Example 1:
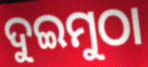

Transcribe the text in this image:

ଦୁଇମୁଠା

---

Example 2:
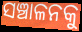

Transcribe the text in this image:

ସଞ୍ଚାଳନକୁ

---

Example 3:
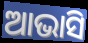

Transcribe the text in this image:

ଆଭାସି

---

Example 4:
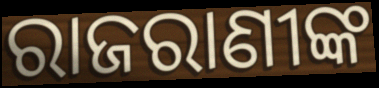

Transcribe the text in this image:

ରାଜରାଣୀଙ୍କ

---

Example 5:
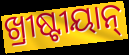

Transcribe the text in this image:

ଖ୍ରୀଷ୍ଟୀୟାନ୍